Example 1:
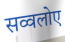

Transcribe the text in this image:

सव्वलोए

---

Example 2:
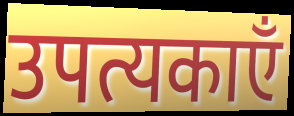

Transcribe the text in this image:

उपत्यकाएँ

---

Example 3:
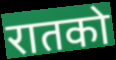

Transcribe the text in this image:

रातको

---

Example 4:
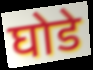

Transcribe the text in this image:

घोडे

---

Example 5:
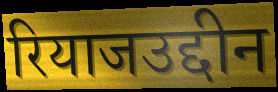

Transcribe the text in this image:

रियाजउद्दीन